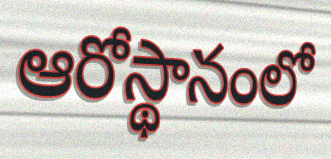
ఆరోస్థానంలో